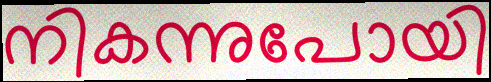
നികന്നുപോയി